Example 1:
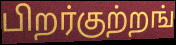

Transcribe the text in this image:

பிறர்குற்றங்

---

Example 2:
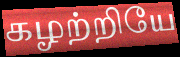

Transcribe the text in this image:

கழற்றியே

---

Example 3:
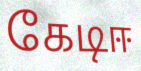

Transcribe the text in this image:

கேடிஈ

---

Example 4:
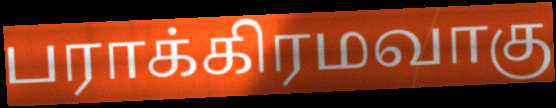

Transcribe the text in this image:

பராக்கிரமவாகு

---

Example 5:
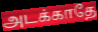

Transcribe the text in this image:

அடக்காதே